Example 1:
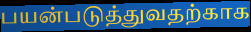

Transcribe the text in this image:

பயன்படுத்துவதற்காக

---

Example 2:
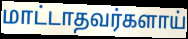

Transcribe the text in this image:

மாட்டாதவர்களாய்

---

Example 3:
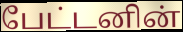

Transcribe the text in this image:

பேட்டனின்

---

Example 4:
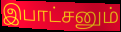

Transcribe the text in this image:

இபாட்சனும்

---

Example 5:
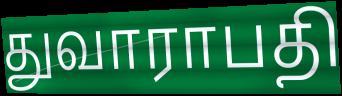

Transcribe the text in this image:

துவாராபதி